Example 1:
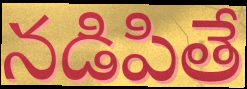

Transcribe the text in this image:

నడిపితే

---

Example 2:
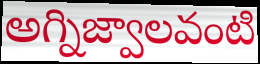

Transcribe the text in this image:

అగ్నిజ్వాలవంటి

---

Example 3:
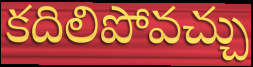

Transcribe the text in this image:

కదిలిపోవచ్చు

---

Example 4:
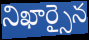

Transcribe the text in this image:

నిఖార్సైన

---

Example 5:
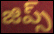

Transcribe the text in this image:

జిప్స్